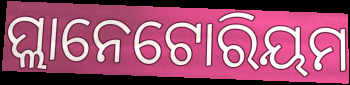
ପ୍ଲାନେଟୋରିୟମ